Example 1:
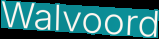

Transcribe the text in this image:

Walvoord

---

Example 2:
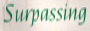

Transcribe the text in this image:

Surpassing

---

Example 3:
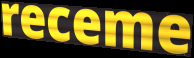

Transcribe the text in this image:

receme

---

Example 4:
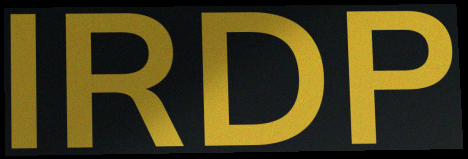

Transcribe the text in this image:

IRDP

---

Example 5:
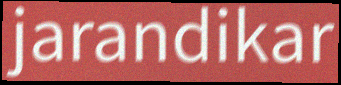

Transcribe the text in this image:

jarandikar